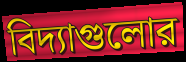
বিদ্যাগুলোর